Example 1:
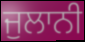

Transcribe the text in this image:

ਜੁਲਾਨੀ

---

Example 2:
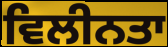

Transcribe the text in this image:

ਵਿਲੀਨਤਾ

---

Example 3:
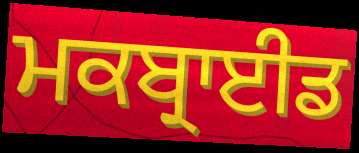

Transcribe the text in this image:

ਮਕਬ੍ਰਾਈਡ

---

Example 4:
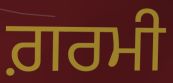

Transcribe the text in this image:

ਗ਼ਰਮੀ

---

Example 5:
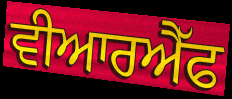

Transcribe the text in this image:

ਵੀਆਰਐੱਫ